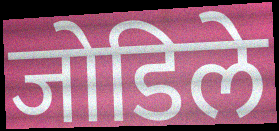
जोडिले